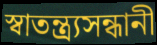
স্বাতন্ত্র্যসন্ধানী